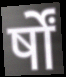
र्षों